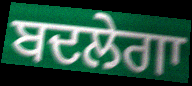
ਬਦਲੇਗਾ